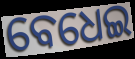
ବେଧେଇ